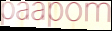
paapom